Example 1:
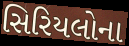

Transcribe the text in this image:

સિરિયલોના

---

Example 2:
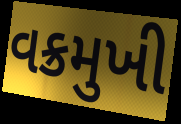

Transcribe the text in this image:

વક્રમુખી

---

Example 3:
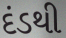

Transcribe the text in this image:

દંડથી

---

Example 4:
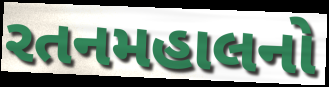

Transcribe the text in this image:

રતનમહાલનો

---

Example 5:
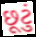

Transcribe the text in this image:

છૂટું